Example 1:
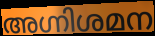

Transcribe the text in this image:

അഗ്നിശമന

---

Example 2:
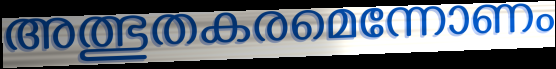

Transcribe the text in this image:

അത്ഭുതകരമെന്നോണം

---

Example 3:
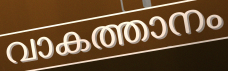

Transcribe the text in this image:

വാകത്താനം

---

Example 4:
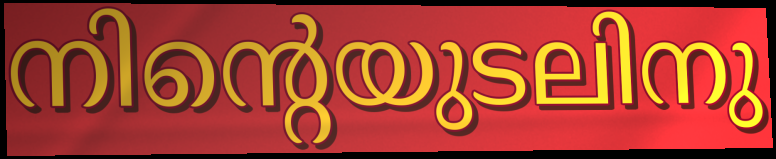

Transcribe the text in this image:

നിന്റെയുടലിനു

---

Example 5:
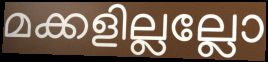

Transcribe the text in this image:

മക്കളില്ലല്ലോ